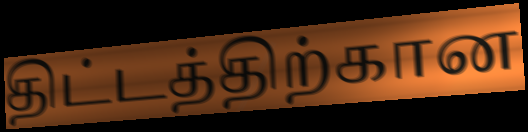
திட்டத்திற்கான